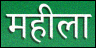
महीला